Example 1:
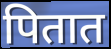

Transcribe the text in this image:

पितात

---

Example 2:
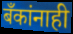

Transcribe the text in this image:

बँकांनाही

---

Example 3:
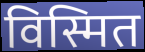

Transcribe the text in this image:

विस्मित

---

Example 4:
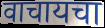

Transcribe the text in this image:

वाचायचा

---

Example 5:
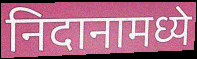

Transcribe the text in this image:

निदानामध्ये